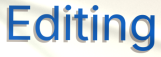
Editing